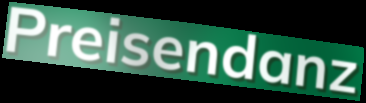
Preisendanz